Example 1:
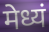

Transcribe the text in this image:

मेध्यं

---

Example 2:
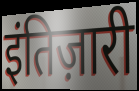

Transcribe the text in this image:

इंतिज़ारी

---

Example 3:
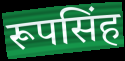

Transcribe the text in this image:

रूपसिंह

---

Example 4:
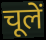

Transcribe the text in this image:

चूलें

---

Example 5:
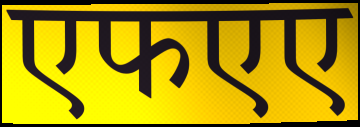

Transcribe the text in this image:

एफएए